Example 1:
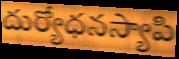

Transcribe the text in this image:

దుర్యోధనస్యాపి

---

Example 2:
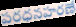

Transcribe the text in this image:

పరధనహరణే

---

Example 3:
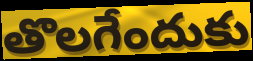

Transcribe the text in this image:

తొలగేందుకు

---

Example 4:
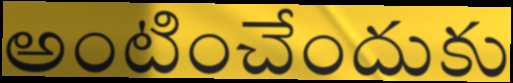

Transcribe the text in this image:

అంటించేందుకు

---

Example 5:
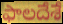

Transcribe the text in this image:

ఫాలదేశే